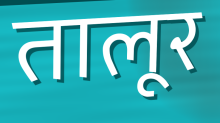
तालूर